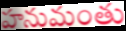
హనుమంతు